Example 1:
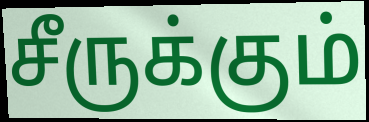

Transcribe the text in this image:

சீருக்கும்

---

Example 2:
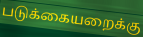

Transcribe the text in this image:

படுக்கையறைக்கு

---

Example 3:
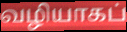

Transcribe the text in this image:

வழியாகப்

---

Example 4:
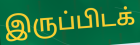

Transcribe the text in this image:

இருப்பிடக்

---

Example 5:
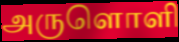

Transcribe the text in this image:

அருளொளி